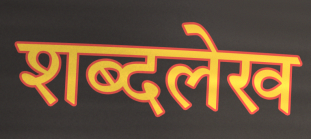
शब्दलेख